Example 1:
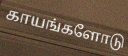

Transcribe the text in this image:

காயங்களோடு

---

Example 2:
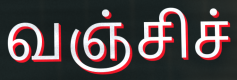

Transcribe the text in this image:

வஞ்சிச்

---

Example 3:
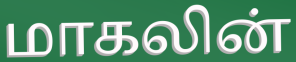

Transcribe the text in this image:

மாகலின்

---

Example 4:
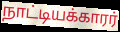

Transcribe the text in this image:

நாட்டியக்காரர்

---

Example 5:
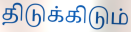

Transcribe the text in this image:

திடுக்கிடும்